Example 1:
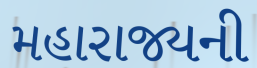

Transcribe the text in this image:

મહારાજ્યની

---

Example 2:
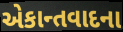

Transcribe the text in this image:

એકાન્તવાદના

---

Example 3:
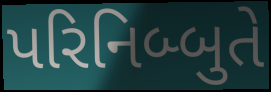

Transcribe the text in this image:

પરિનિબ્બુતે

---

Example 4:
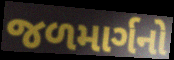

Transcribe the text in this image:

જળમાર્ગનો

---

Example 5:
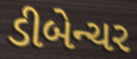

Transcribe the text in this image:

ડીબેન્ચર